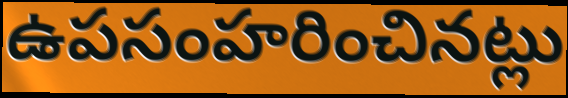
ఉపసంహరించినట్లు